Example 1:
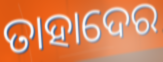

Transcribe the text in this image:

ତାହାଦେର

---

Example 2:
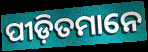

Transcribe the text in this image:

ପୀଡ଼ିତମାନେ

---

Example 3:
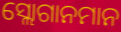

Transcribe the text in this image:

ସ୍ଲୋଗାନମାନ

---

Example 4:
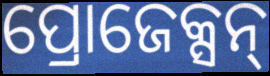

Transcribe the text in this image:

ପ୍ରୋଜେକ୍ସନ୍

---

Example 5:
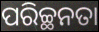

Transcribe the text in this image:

ପରିଚ୍ଛନତା